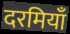
दरमियाँ